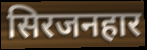
सिरजनहार